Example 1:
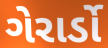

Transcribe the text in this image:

ગેરાર્ડો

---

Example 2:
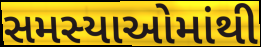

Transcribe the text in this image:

સમસ્યાઓમાંથી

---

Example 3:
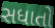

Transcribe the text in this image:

સધાતો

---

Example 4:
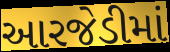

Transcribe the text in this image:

આરજેડીમાં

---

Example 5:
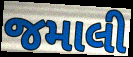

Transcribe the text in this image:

જમાલી